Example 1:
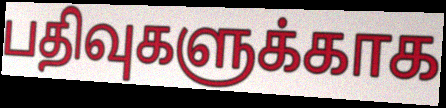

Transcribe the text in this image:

பதிவுகளுக்காக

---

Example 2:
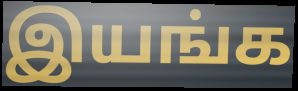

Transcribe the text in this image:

இயங்க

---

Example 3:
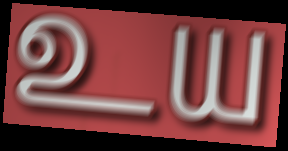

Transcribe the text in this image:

உய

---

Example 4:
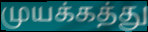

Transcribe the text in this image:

முயக்கத்து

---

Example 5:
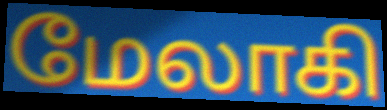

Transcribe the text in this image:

மேலாகி